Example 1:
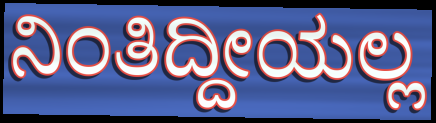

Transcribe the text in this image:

ನಿಂತಿದ್ದೀಯಲ್ಲ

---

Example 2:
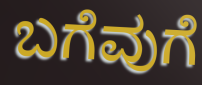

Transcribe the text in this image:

ಬಗೆವುಗೆ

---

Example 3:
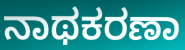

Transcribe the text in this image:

ನಾಥಕರಣಾ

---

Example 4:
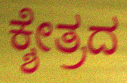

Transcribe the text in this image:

ಕ್ಶೇತ್ರದ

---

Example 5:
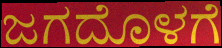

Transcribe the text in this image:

ಜಗದೊಳಗೆ